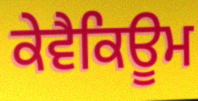
ਕੇਵੈਕਿਊਮ